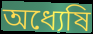
অধ্যেষি